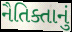
નૈતિક્તાનું